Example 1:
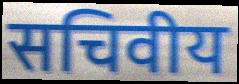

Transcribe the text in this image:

सचिवीय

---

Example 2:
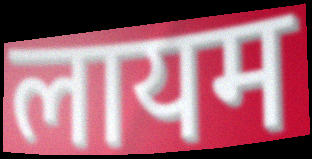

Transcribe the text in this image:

लायम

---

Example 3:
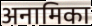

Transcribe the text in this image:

अनामिका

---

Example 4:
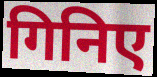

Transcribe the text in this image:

गिनिए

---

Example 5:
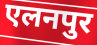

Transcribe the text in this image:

एलनपुर